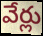
వేర్లు